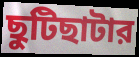
ছুটিছাটার